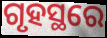
ଗୃହସ୍ଥରେ